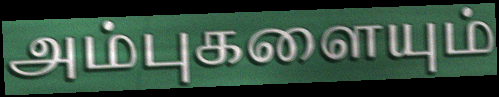
அம்புகளையும்